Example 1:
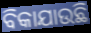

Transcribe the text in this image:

ବିକାଯାଉଛି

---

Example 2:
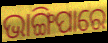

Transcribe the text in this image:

ଭାଙ୍ଗିପାରେ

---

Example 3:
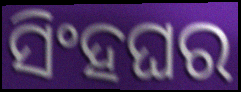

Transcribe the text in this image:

ସିଂହଘର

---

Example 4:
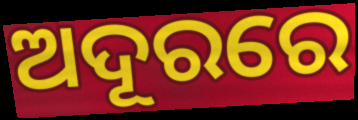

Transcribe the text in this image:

ଅଦୂରରେ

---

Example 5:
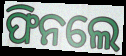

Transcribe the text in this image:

ଫିନଲେ